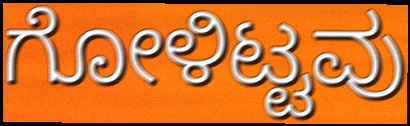
ಗೋಳಿಟ್ಟವು